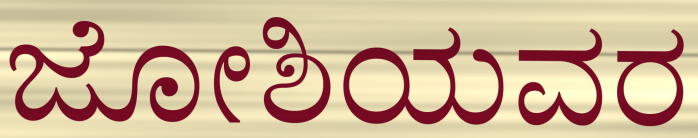
ಜೋಶಿಯವರ